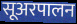
सूअरपालन